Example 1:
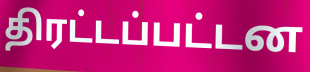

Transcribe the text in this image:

திரட்டப்பட்டன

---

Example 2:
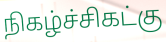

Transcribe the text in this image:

நிகழ்ச்சிகட்கு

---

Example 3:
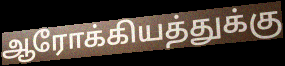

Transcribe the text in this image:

ஆரோக்கியத்துக்கு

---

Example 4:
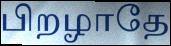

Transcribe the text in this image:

பிறழாதே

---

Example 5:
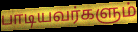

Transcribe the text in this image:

பாடியவர்களும்